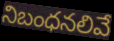
నిబంధనలివే